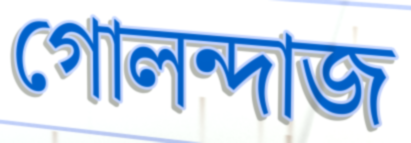
গোলন্দাজ